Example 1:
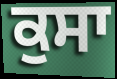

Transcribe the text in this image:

ਕੁਸਾ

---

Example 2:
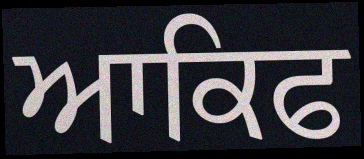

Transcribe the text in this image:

ਆਕਿਫ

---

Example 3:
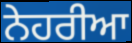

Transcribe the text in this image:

ਨੇਹਰੀਆ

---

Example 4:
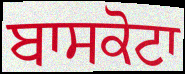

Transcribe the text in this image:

ਬਾਸਕੋਟਾ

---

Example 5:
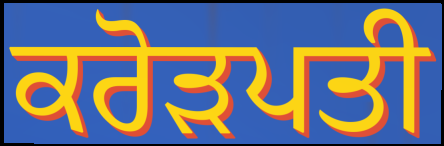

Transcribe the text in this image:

ਕਰੋੜਪਤੀ